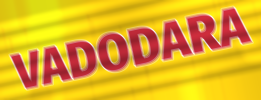
VADODARA